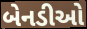
બેનડીઓ